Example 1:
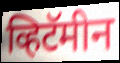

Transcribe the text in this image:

व्हिटॅमीन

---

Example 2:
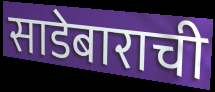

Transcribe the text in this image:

साडेबाराची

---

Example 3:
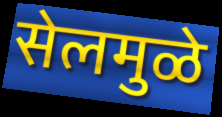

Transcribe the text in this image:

सेलमुळे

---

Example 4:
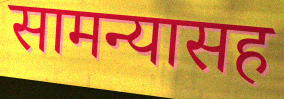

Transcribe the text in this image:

सामन्यासह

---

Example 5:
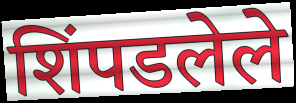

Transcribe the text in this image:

शिंपडलेले